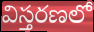
విస్తరణలో